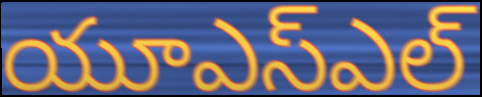
యూఎస్ఎల్